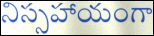
నిస్సహాయంగా